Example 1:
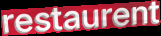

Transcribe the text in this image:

restaurent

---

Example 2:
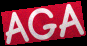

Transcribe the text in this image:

AGA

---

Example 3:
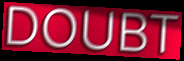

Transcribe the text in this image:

DOUBT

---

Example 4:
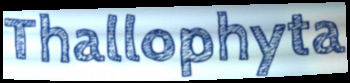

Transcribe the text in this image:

Thallophyta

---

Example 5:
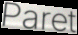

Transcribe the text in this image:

Paret